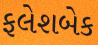
ફલેશબેક